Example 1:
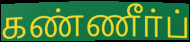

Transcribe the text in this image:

கண்ணீர்ப்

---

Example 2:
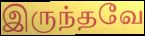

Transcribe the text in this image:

இருந்தவே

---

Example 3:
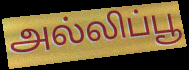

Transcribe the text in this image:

அல்லிப்பூ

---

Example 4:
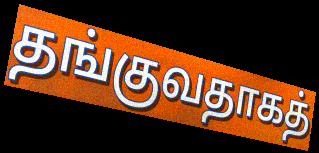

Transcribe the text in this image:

தங்குவதாகத்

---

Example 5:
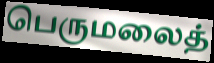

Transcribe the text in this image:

பெருமலைத்